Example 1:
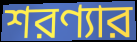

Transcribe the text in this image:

শরণ্যার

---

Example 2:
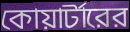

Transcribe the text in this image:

কোয়ার্টারের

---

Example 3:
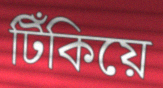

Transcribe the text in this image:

টিঁকিয়ে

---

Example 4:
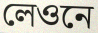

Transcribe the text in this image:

লেওনে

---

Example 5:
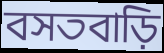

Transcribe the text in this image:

বসতবাড়ি